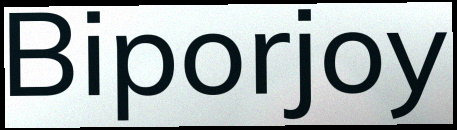
Biporjoy